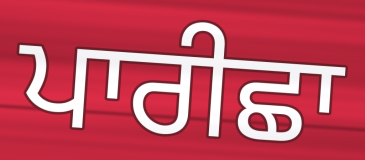
ਪਾਰੀਛਾ